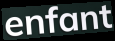
enfant